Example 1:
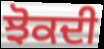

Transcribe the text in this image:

ਝੋਕਦੀ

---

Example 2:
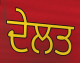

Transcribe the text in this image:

ਦੇਲਤ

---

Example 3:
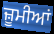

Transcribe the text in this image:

ਜ਼ੂਮੀਆਂ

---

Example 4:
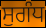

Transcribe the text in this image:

ਸੁਗੰਧ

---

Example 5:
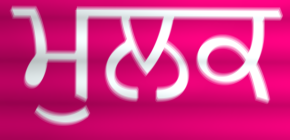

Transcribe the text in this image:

ਮੁਲਕ